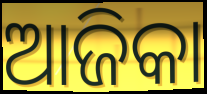
ଆଜିକା